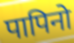
पापिनो